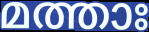
മത്താഃ